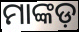
ମାଙ୍କଡ଼